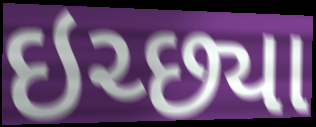
ઇચ્છ્યા